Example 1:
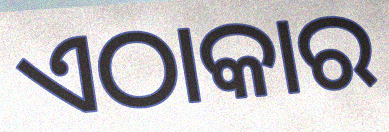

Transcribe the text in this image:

ଏଠାକାର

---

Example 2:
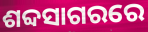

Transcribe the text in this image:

ଶବ୍ଦସାଗରରେ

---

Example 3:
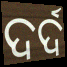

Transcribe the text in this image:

ଦର୍ଦ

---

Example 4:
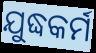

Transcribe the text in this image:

ଯୁଦ୍ଧକର୍ମ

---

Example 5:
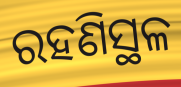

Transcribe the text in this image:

ରହଣିସ୍ଥଳ